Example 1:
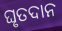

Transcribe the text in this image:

ଘୃତଦାନ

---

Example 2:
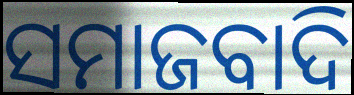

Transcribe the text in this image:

ସମାଜବାଦି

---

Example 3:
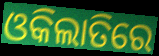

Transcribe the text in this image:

ଓକିଲାତିରେ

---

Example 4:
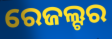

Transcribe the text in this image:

ରେଜଲ୍ଟର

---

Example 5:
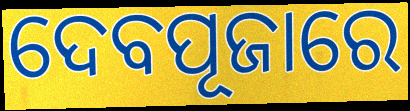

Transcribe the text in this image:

ଦେବପୂଜାରେ